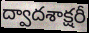
ద్వాదశాక్షరీ